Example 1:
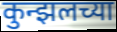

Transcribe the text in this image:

कुन्झलच्या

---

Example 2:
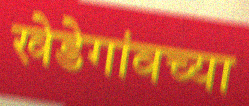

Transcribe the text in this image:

खेडेगांवच्या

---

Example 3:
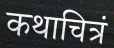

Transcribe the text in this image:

कथाचित्रं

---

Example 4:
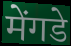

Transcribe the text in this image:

मेंगडे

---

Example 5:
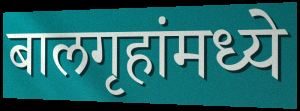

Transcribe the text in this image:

बालगृहांमध्ये